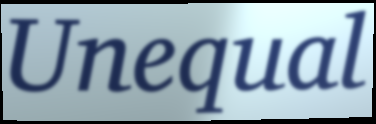
Unequal